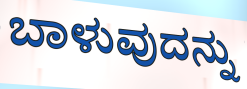
ಬಾಳುವುದನ್ನು